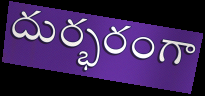
దుర్భరంగా